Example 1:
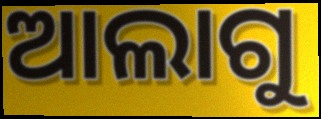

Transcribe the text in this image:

ଆଲାଗୁ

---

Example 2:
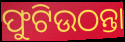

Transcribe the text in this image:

ଫୁଟିଉଠନ୍ତା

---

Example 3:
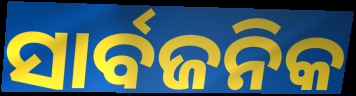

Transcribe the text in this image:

ସାର୍ବଜନିକ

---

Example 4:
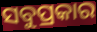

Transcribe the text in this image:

ସବୁପ୍ରକାର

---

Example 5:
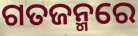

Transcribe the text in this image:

ଗତଜନ୍ମରେ